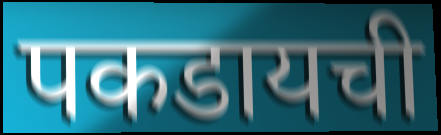
पकडायची